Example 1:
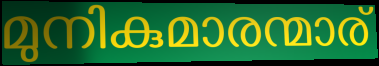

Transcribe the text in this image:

മുനികുമാരന്മാര്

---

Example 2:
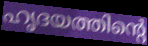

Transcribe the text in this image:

ഹൃദയത്തിന്റെ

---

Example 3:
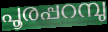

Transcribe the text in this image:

പൂരപ്പറമ്പു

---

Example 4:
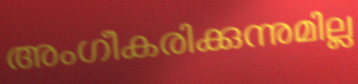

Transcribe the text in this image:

അംഗീകരിക്കുന്നുമില്ല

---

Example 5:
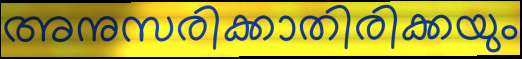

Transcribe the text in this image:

അനുസരിക്കാതിരിക്കയും